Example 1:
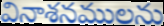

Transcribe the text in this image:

వినాశనములను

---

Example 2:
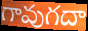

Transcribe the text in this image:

గావుగదా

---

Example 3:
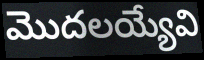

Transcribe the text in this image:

మొదలయ్యేవి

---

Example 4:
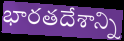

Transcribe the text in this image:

భారతదేశాన్ని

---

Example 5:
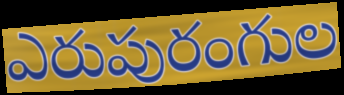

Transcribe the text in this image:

ఎరుపురంగుల